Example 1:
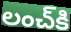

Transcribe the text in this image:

లంచ్‌కి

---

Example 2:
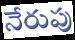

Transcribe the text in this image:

నేరుపు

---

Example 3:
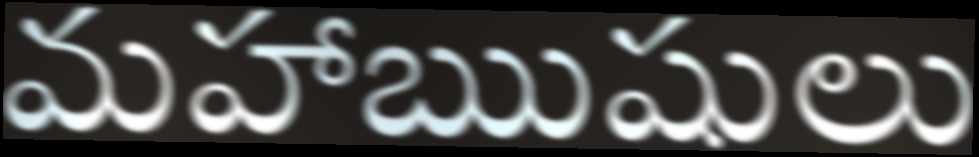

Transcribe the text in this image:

మహాఋషులు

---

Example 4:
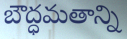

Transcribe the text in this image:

బౌద్ధమతాన్ని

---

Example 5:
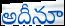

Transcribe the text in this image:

అదీనూ